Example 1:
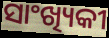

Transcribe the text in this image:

ସାଂଖ୍ୟିକୀ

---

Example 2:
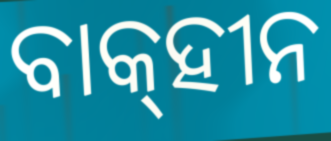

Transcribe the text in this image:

ବାକ୍‌ହୀନ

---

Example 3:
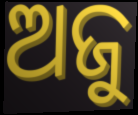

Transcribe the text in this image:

ଅଜୁ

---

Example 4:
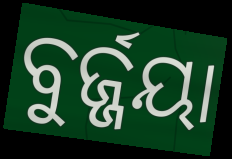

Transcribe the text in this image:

ବୁର୍ଜ୍ଜୟା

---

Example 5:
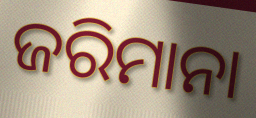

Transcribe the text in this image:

ଜରିମାନା